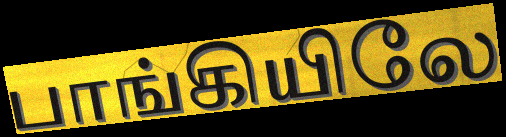
பாங்கியிலே